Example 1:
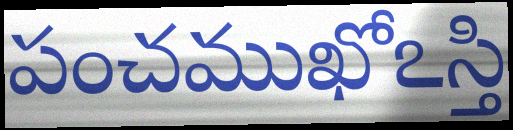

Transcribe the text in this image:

పంచముఖోఽస్తి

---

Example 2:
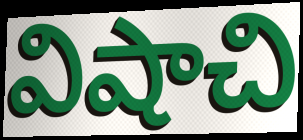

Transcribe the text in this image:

విషాచి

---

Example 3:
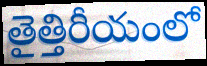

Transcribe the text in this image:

తైత్తిరీయంలో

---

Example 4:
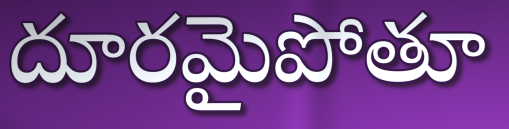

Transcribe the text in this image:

దూరమైపోతూ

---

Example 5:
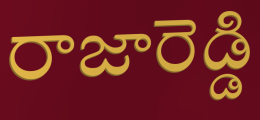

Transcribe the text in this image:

రాజారెడ్డి